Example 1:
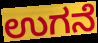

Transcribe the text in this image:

ಉಗನೆ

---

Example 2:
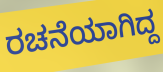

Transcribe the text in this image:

ರಚನೆಯಾಗಿದ್ದ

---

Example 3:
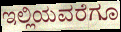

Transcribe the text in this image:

ಇಲ್ಲಿಯವರೆಗೂ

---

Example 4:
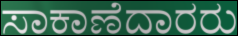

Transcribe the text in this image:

ಸಾಕಾಣೆದಾರರು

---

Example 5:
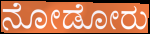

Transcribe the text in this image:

ನೋಡೋರು